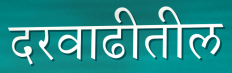
दरवाढीतील